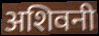
अशिवनी